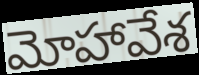
మోహావేశ